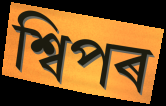
শ্বিপৰ